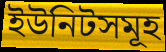
ইউনিটসমূহ